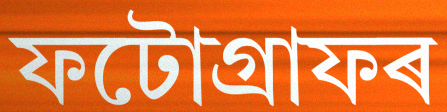
ফটোগ্ৰাফৰ